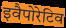
इवैपोरेटिव